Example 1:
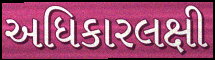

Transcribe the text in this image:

અધિકારલક્ષી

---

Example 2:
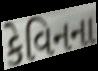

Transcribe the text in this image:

કેવિનના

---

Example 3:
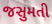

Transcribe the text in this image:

જસુમતી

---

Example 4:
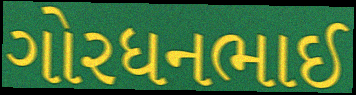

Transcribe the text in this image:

ગોરધનભાઈ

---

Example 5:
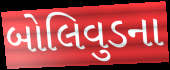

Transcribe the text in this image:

બોલિવુડના